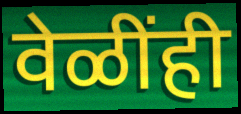
वेळींही